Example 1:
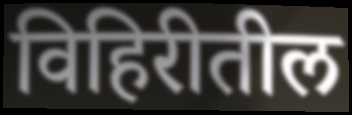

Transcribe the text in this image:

विहिरीतील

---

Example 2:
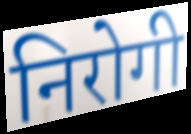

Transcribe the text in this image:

निरोगी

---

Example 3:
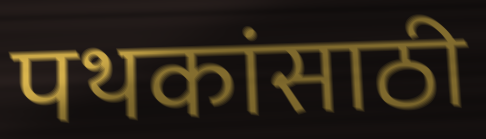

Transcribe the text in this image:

पथकांसाठी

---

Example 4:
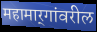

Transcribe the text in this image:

महामार्गांवरील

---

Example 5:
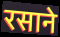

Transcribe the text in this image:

रसाने